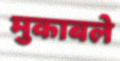
मुकाबले